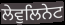
ਲੇਵੁਲਿਨੇਟ